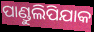
ପାଣ୍ଡୁଲିପିଯାକ